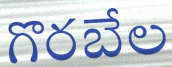
గొరబేల